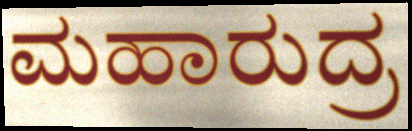
ಮಹಾರುದ್ರ